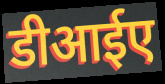
डीआईए